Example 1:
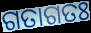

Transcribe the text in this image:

ଗତାଗତଃ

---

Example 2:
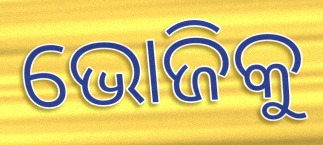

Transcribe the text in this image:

ଭୋଜିକୁ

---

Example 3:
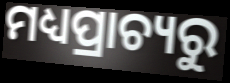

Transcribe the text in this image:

ମଧ୍ୟପ୍ରାଚ୍ୟରୁ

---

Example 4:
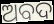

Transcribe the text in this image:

ଅବଦ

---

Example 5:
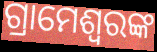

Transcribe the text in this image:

ଗ୍ରାମେଶ୍ୱରଙ୍କ